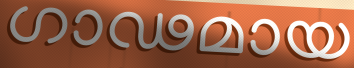
ഗാഢമായ